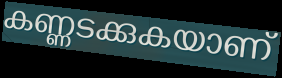
കണ്ണടക്കുകയാണ്